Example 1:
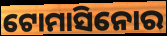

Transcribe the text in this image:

ଟୋମାସିନୋର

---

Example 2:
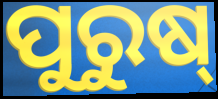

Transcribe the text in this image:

ପୁରୁଷ୍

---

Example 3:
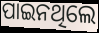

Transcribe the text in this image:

ପାଇନଥିଲେ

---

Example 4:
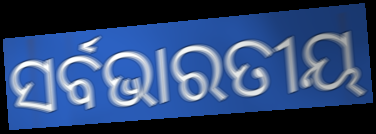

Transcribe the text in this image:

ସର୍ବଭାରତୀୟ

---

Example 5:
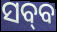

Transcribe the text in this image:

ସବ୍‌ବ